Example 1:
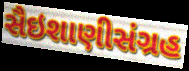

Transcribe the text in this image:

સૈઇશાણીસંગ્રહ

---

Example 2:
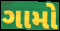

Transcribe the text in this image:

ગામો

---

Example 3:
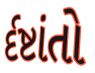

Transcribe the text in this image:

ર્દષ્ટાંતો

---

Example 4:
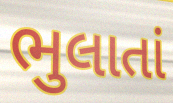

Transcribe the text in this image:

ભુલાતાં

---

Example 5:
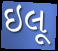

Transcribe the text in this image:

ઇલૂ